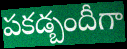
పకడ్బందీగా